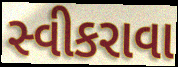
સ્વીકરાવા